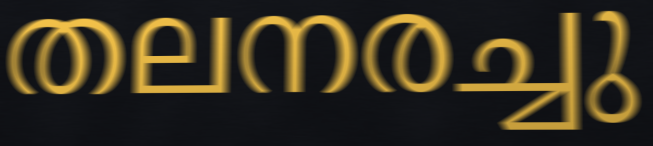
തലനരച്ചു